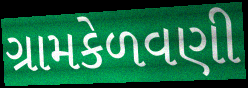
ગ્રામકેળવણી